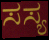
ಸಸ್ಯ